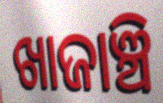
ଖାଜାଞ୍ଚି